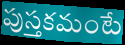
పుస్తకమంటే